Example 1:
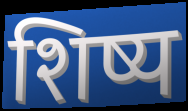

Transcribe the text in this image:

शिष्य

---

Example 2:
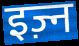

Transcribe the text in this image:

इज़्न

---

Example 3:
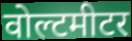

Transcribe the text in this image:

वोल्टमीटर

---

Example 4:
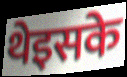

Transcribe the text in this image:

थेइसके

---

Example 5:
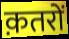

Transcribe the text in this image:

क़तरों